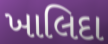
ખાલિદા